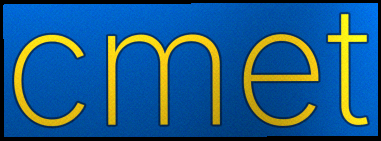
cmet